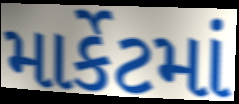
માર્કેટમાં